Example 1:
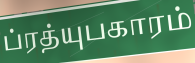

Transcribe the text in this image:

ப்ரத்யுபகாரம்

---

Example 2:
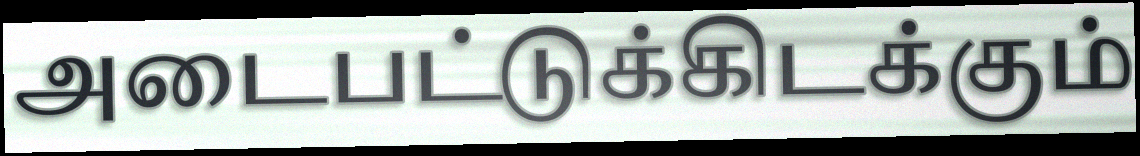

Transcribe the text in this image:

அடைபட்டுக்கிடக்கும்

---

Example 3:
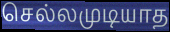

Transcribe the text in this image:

செல்லமுடியாத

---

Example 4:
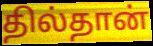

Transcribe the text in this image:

தில்தான்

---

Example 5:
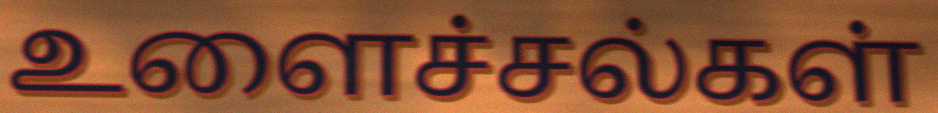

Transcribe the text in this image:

உளைச்சல்கள்